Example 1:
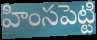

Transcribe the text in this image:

హింసపెట్టి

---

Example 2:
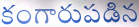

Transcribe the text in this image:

కంగారుపడిన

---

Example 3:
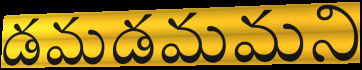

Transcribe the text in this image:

డమడమమని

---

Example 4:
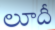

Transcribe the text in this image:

లూదీ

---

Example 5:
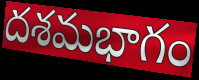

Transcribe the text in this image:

దశమభాగం